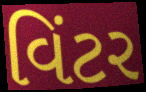
વિંટર